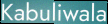
Kabuliwala